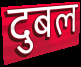
दुबल